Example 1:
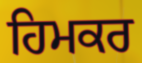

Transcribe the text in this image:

ਹਿਮਕਰ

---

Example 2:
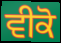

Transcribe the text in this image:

ਵੀਕੋ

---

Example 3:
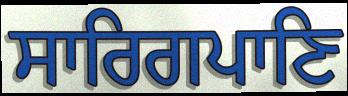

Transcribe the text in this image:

ਸਾਰਿਗਪਾਣਿ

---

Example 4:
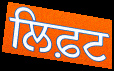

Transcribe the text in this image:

ਲਿਫ਼ਟ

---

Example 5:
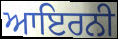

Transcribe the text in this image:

ਆਇਰਨੀ